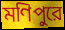
মণিপুরে